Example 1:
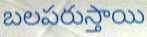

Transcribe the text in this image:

బలపరుస్తాయి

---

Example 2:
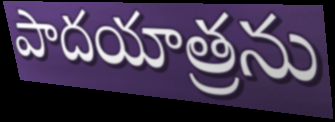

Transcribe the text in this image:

పాదయాత్రను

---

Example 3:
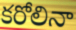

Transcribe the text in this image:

కరోలినా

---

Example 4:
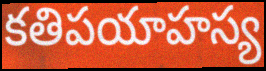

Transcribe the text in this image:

కతిపయాహస్య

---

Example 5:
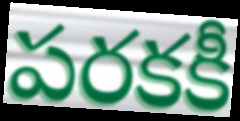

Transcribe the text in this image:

పరకకీ